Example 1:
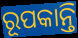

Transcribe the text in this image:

ରୂପକାନ୍ତି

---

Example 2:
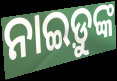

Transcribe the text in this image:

ନାଇଡ଼ୁଙ୍କ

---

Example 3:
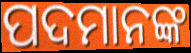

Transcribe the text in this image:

ପଦମାନଙ୍କ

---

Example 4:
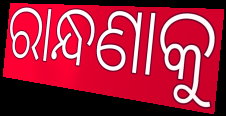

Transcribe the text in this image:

ରାନ୍ଧଣାକୁ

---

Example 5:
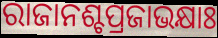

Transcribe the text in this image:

ରାଜାନଶ୍ଚପ୍ରଜାଭକ୍ଷାଃ